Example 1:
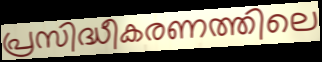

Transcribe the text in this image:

പ്രസിദ്ധീകരണത്തിലെ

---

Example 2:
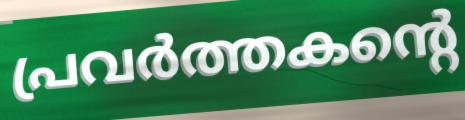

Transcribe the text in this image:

പ്രവർത്തകന്റെ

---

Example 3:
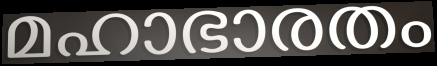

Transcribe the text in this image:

മഹാഭാരതം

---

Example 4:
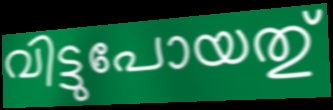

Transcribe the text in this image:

വിട്ടുപോയതു്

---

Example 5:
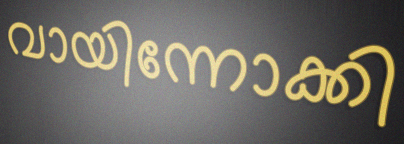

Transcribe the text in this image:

വായിന്നോക്കി